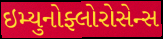
ઇમ્યુનોફ્લોરોસેન્સ